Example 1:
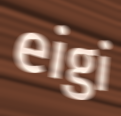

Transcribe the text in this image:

eigi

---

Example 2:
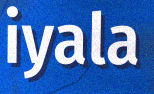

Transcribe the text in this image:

iyala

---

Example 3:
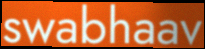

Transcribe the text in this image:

swabhaav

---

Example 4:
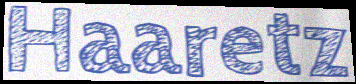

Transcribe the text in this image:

Haaretz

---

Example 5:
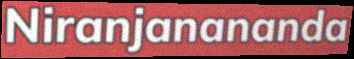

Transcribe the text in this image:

Niranjanananda